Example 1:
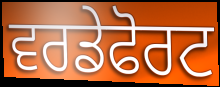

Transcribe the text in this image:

ਵਰਡੇਫੋਰਟ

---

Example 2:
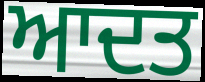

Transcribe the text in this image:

ਆਦਤ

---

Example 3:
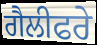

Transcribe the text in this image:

ਗੈਲੀਫਰੇ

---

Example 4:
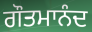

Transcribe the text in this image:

ਗੌਤਮਾਨੰਦ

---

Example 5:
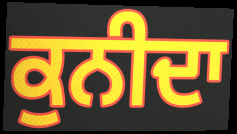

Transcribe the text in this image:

ਕੁਨੀਦਾ